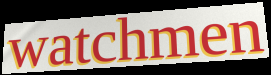
watchmen